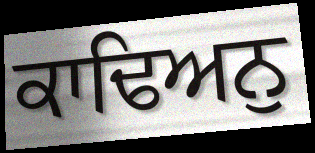
ਕਾਢਿਅਨੁ